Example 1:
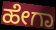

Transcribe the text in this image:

ಹೇಗಾ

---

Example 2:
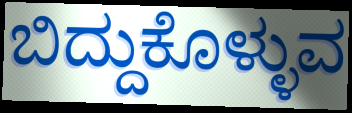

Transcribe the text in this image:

ಬಿದ್ದುಕೊಳ್ಳುವ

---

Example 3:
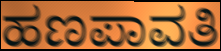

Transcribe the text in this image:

ಹಣಪಾವತಿ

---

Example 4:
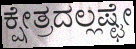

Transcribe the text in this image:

ಕ್ಷೇತ್ರದಲ್ಲಷ್ಟೇ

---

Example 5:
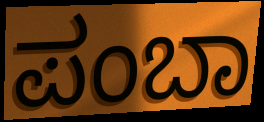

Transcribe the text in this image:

ಪಂಬಾ